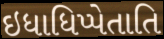
ઇધાધિપ્પેતાતિ